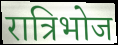
रात्रिभोज